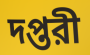
দপ্তরী